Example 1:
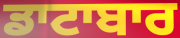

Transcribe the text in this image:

ਡਾਟਾਬਾਰ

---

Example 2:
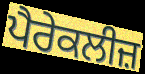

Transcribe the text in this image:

ਪੈਰੇਕਲੀਜ਼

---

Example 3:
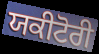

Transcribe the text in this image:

ਯਕੀਟੋਰੀ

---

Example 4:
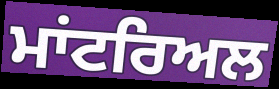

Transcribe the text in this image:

ਮਾਂਟਰਿਅਲ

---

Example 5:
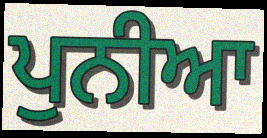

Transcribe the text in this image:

ਪੁਨੀਆ